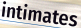
intimates